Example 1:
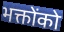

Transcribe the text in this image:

भक्तोंको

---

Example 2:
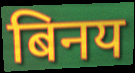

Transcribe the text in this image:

बिनय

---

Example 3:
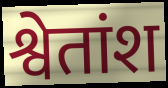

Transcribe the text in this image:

श्वेतांश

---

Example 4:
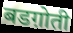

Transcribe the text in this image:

बडग़ोती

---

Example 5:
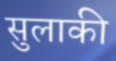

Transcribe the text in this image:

सुलाकी